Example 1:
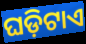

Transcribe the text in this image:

ଘଡ଼ିଟାଏ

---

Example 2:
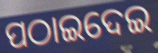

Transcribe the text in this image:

ପଠାଇଦେଇ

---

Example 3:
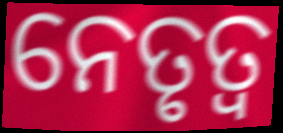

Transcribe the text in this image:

ନେତୃତ୍ଵ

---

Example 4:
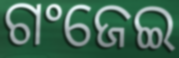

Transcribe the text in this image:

ଗଂଜେଇ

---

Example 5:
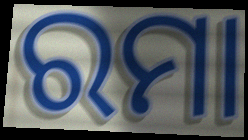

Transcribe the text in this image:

ରମା